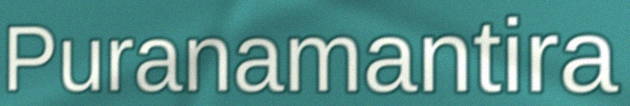
Puranamantira